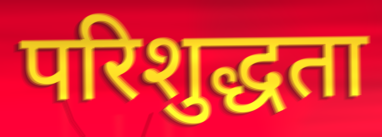
परिशुद्धता